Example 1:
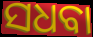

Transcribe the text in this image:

ସଧବା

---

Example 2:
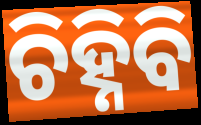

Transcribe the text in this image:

ଚିହ୍ନିବି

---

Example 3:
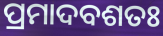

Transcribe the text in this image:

ପ୍ରମାଦବଶତଃ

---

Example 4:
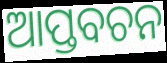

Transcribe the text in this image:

ଆପ୍ତବଚନ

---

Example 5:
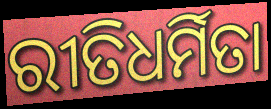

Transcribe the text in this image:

ରୀତିଧର୍ମିତା